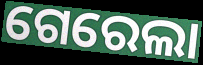
ଗେରେଲା